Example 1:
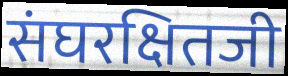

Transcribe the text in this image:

संघरक्षितजी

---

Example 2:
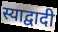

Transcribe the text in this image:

स्याद्वादी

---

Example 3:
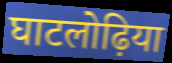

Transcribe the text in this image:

घाटलोढ़िया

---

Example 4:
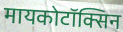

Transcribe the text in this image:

मायकोटॉक्सिन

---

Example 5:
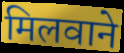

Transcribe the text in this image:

मिलवाने